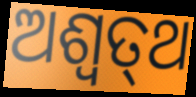
ଅଶ୍ଵତ୍‌ଥ